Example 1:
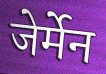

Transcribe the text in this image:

जेर्मेन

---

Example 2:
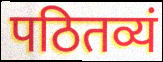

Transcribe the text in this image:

पठितव्यं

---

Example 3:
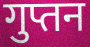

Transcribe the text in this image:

गुप्तन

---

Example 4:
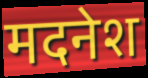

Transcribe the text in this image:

मदनेश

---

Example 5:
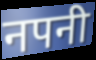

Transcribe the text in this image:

नपनी